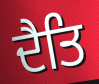
ਦੈਤਿ